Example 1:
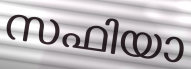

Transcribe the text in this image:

സഫിയാ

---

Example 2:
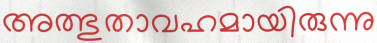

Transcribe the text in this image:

അത്ഭുതാവഹമായിരുന്നു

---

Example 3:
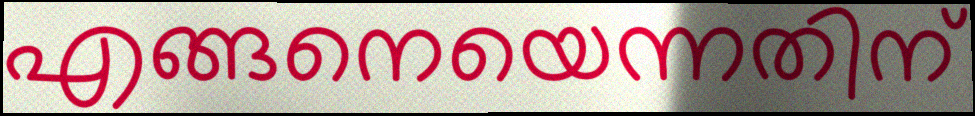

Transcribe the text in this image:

എങ്ങനെയെന്നതിന്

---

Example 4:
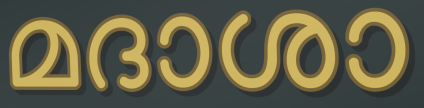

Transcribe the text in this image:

മദാശാ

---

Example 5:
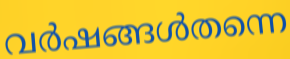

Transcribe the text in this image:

വർഷങ്ങൾതന്നെ